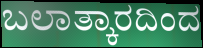
ಬಲಾತ್ಕಾರದಿಂದ